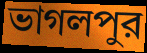
ভাগলপুর